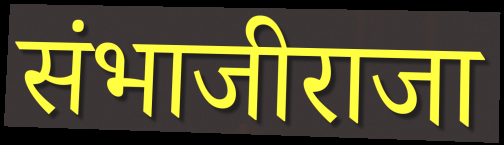
संभाजीराजा